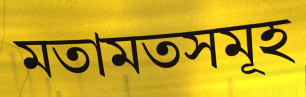
মতামতসমূহ